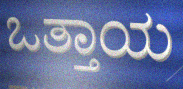
ಒತ್ತಾಯ